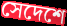
সেদেশে